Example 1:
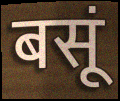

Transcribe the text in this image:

बसूं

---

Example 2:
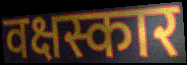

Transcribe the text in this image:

वक्षस्कार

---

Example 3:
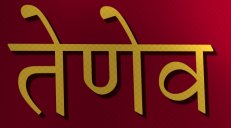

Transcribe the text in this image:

तेणेव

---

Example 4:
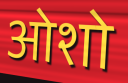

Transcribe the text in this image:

ओशो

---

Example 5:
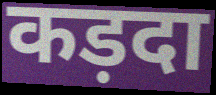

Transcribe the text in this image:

कड़दा